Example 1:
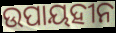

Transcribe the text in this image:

ଉପାୟହୀନ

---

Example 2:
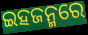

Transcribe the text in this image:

ଇହଜନ୍ମରେ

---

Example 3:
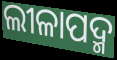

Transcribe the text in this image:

ଲୀଳାପଦ୍ମ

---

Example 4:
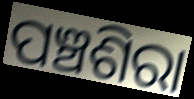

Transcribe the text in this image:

ପଞ୍ଚଶିରା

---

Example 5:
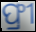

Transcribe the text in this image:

ଫ୍ରୀ